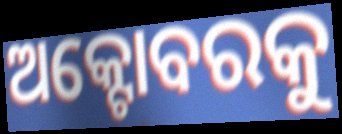
ଅକ୍ଟୋବରକୁ